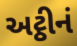
અટ્ઠીનં